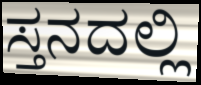
ಸ್ತನದಲ್ಲಿ